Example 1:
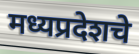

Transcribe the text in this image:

मध्यप्रदेशचे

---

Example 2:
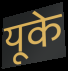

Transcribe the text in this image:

यूके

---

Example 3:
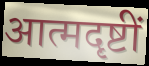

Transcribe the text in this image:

आत्मदृष्टीं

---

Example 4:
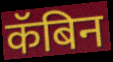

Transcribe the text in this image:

कॅबिन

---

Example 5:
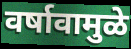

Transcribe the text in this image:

वर्षावामुळे